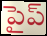
పైప్